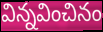
విన్నవించినం